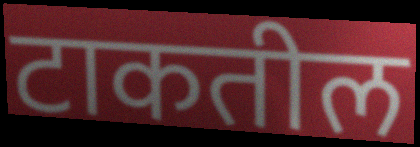
टाकतील